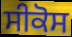
ਸੀਕੋਸ